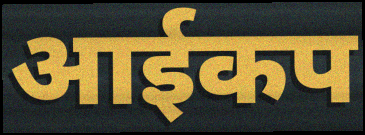
आईकप